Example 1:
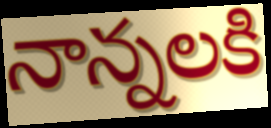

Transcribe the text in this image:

నాన్నలకి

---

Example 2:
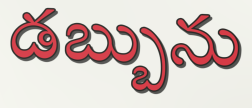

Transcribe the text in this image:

డబ్బును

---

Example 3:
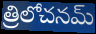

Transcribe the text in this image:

త్రిలోచనమ్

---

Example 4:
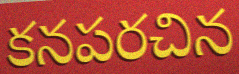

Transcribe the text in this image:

కనపరచిన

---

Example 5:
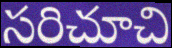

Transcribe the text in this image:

సరిచూచి